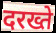
दरख्ते